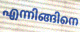
എന്നിങ്ങിനെ